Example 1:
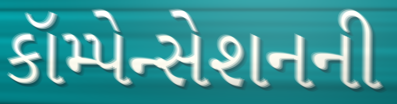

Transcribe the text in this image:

કૉમ્પેન્સેશનની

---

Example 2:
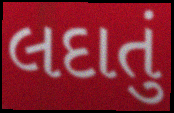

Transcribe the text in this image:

લદાતું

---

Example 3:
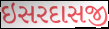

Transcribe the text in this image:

ઇસરદાસજી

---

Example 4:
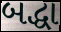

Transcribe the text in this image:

બદ્ધા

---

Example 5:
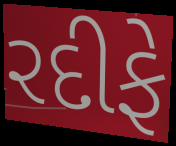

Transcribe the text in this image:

રદીફે